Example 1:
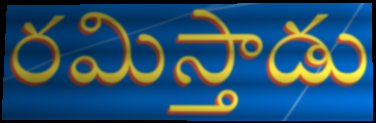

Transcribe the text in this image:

రమిస్తాడు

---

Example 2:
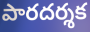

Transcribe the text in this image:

పారదర్శక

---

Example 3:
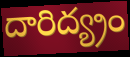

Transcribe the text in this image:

దారిద్య్రం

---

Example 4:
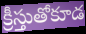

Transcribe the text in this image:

క్రీస్తుతోకూడ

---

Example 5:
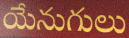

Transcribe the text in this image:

యేనుగులు